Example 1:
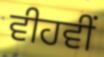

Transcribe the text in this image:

ਵੀਹਵੀਂ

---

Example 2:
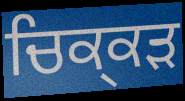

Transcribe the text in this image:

ਚਿਕ੍ਕੜ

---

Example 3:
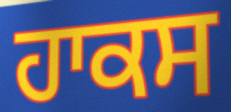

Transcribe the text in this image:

ਹਾਕਸ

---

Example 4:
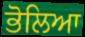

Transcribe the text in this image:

ਭੋਲਿਆ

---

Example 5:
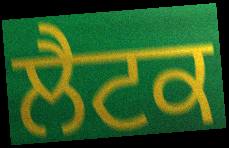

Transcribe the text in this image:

ਲੈਟਕ